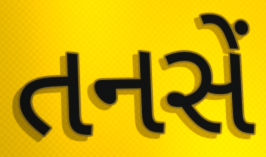
તનસેં